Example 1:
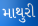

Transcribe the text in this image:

માથુરી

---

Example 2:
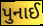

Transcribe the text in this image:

પુનાઈ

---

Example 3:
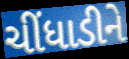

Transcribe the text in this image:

ચીંધાડીને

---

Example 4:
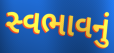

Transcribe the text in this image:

સ્વભાવનું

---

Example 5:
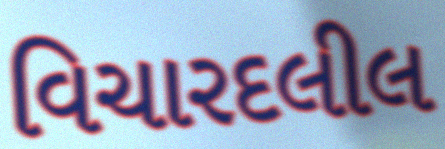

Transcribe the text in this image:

વિચારદલીલ